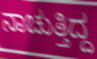
ನಾಚುತ್ತಿದ್ದ